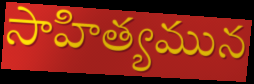
సాహిత్యమున